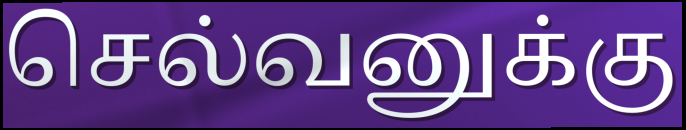
செல்வனுக்கு